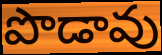
పొడావు